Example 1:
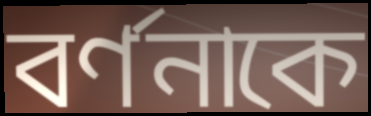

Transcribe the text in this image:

বর্ণনাকে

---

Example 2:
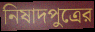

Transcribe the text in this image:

নিষাদপুত্রের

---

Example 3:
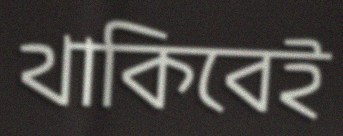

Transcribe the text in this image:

থাকিবেই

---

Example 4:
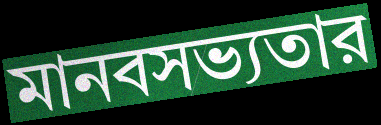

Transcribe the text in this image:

মানবসভ্যতার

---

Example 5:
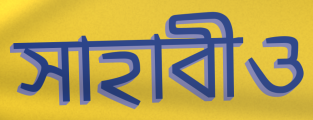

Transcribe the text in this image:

সাহাবীও